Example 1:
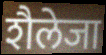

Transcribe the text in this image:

शैलेजा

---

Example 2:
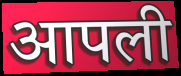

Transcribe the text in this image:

आपली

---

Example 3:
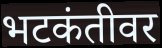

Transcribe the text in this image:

भटकंतीवर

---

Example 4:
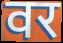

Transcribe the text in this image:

वर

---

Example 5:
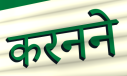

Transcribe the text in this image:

करनने